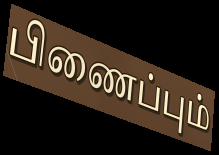
பிணைப்பும்